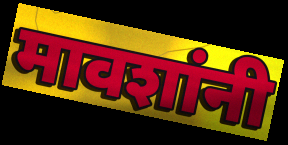
मावशांनी